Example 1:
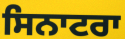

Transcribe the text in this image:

ਸਿਨਾਟਰਾ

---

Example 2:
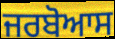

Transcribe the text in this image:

ਜਰਬੋਆਸ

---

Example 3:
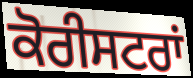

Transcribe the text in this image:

ਕੋਰੀਸਟਰਾਂ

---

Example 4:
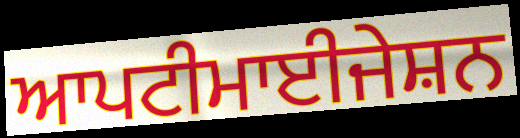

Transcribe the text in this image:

ਆਪਟੀਮਾਈਜੇਸ਼ਨ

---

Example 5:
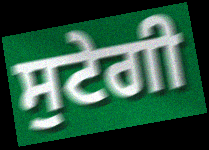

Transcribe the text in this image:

ਸੁਟੇਗੀ